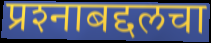
प्रश्नाबद्दलचा